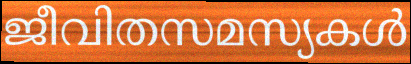
ജീവിതസമസ്യകൾ